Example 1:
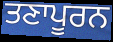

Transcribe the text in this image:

ਤਣਾਪੂਰਨ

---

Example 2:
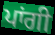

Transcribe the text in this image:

ਪਾਂਗੀ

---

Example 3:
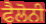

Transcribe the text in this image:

ਫੈਲੋਨੀ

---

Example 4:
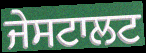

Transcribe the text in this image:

ਜੇਸਟਾਲਟ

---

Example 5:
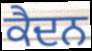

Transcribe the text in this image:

ਕੈਦਨ